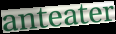
anteater